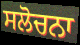
ਸਲੋਚਨਾ